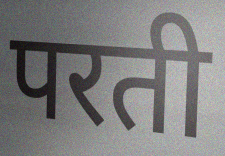
परती